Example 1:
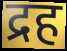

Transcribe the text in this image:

द्रह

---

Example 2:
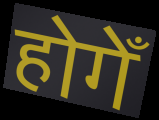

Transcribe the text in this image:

होगेँ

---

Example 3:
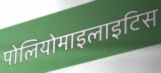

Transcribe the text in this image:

पोलियोमाइलाइटिस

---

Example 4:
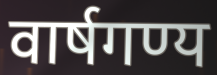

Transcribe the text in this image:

वार्षगण्य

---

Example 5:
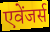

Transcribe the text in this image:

एवेंजर्स